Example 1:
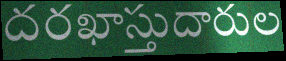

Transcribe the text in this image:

దరఖాస్తుదారుల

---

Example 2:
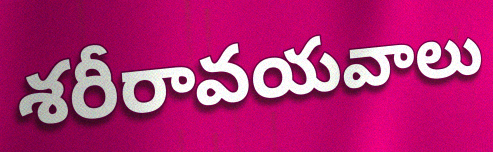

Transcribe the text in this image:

శరీరావయవాలు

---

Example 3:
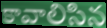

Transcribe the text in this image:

కావాలిసిన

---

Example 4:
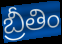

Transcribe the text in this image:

బ్రీతిం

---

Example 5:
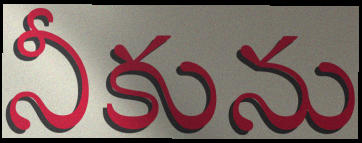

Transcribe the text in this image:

నీకును